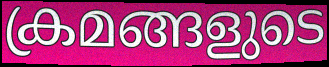
ക്രമങ്ങളുടെ